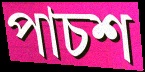
পাচশ